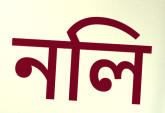
নলি